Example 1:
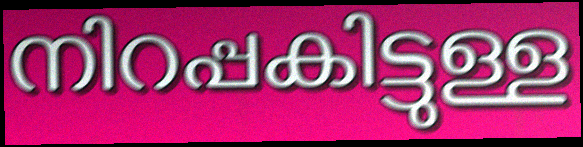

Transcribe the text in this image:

നിറപ്പകിട്ടുള്ള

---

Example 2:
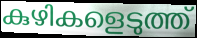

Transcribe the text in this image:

കുഴികളെടുത്ത്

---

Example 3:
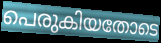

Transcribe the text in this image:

പെരുകിയതോടെ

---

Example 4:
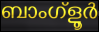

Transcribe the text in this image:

ബാംഗ്ളൂർ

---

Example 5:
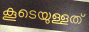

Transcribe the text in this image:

കൂടെയുള്ളത്